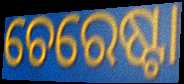
ଚେରେଷ୍ଟା